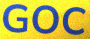
GOC